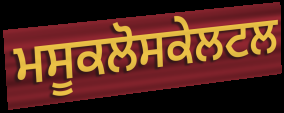
ਮਸੂਕਲੋਸਕੇਲਟਲ